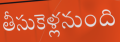
తీసుకెళ్లనుంది